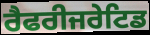
ਰੈਫਰੀਜਰੇਟਿਡ